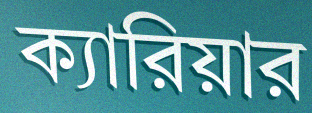
ক্যারিয়ার